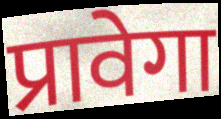
प्रावेगा